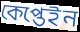
কেপ্তেইন